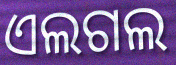
ଏଲଗଲ